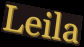
Leila